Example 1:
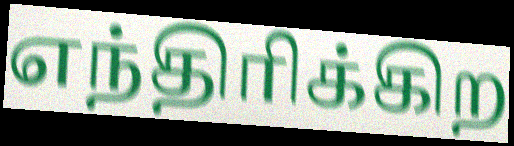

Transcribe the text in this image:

எந்திரிக்கிற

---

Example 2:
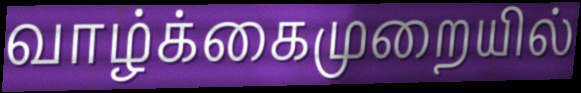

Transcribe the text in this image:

வாழ்க்கைமுறையில்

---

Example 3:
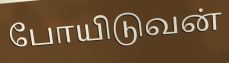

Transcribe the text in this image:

போயிடுவன்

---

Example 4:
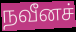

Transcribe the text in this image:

நவீனச்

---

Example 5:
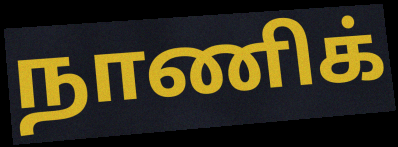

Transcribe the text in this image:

நாணிக்